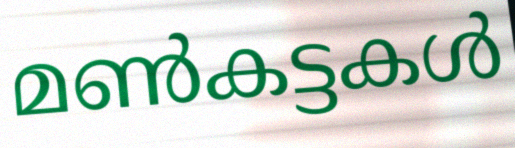
മൺകട്ടകൾ